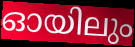
ഓയിലും